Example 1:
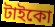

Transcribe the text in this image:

টাইকো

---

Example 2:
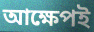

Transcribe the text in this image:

আক্ষেপই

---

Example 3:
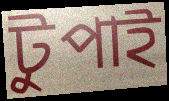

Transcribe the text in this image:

টুপাই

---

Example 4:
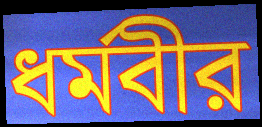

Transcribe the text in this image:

ধর্মবীর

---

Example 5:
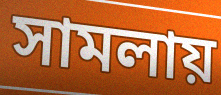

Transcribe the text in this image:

সামলায়